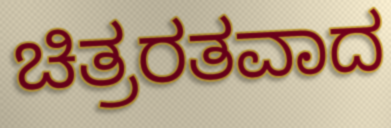
ಚಿತ್ರರತವಾದ